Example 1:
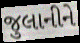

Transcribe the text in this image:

જુલાનીને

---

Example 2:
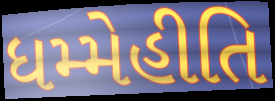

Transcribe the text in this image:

ધમ્મેહીતિ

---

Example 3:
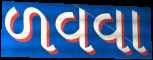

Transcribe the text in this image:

ળવવા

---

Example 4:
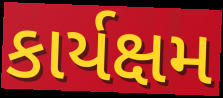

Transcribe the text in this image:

કાર્યક્ષમ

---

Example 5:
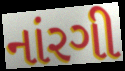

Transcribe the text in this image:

નાંરગી